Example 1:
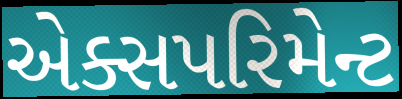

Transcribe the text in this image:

એક્સપરિમેન્ટ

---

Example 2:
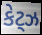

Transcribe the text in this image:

કેટ્ઝ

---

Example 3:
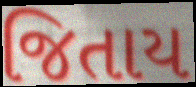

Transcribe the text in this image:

જિતાય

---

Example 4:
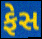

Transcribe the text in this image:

ફેસ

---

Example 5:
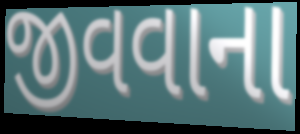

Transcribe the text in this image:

જીવવાના